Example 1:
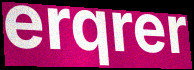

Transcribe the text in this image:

erqrer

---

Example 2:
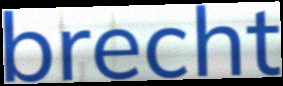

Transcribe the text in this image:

brecht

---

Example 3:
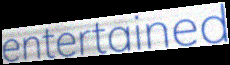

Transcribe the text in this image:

entertained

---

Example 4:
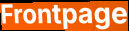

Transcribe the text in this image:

Frontpage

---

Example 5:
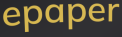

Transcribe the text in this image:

epaper